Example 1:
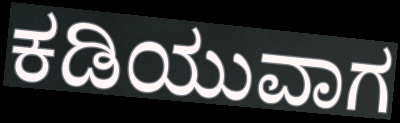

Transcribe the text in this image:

ಕಡಿಯುವಾಗ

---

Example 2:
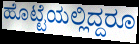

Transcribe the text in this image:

ಹೊಟ್ಟೆಯಲ್ಲಿದ್ದರೂ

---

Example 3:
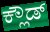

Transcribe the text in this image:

ಕ್ಲೌಡ್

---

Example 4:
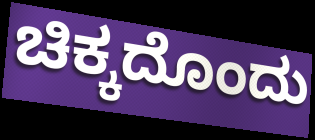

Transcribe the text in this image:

ಚಿಕ್ಕದೊಂದು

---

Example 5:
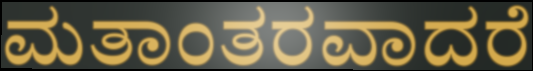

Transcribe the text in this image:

ಮತಾಂತರವಾದರೆ